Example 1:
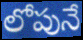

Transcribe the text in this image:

లోపునే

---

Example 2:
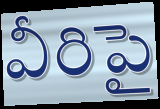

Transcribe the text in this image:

వీరిపై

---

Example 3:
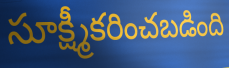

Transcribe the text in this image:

సూక్ష్మీకరించబడింది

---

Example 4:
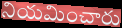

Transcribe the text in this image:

నియమించారు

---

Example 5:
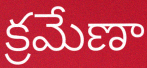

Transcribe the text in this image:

క్రమేణా